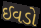
ઈવડો